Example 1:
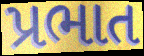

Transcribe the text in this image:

પ્રભાત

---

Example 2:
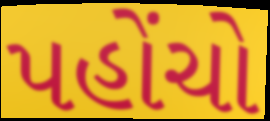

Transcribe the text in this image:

પહોંચો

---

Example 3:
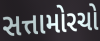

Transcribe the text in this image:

સત્તામોરચો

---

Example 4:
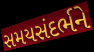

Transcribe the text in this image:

સમયસંદર્ભને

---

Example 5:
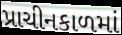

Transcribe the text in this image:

પ્રાચીનકાળમાં